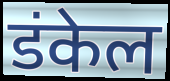
डंकेल